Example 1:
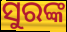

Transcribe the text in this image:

ସୁରଙ୍କ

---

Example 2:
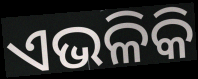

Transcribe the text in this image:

ଏଭଳିକି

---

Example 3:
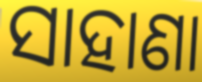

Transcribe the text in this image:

ସାହାଣା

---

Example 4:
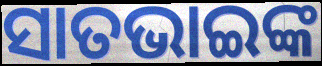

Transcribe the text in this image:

ସାତଭାଇଙ୍କ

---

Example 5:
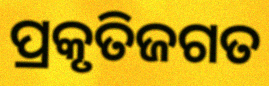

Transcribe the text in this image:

ପ୍ରକୃତିଜଗତ